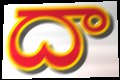
దా